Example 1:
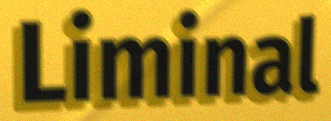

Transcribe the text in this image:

Liminal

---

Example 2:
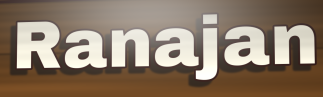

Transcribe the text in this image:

Ranajan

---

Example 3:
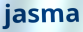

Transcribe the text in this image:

jasma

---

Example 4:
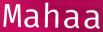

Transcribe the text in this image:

Mahaa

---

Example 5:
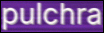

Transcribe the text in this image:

pulchra